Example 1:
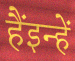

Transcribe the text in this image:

हैंइन्हें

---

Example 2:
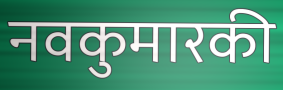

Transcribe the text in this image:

नवकुमारकी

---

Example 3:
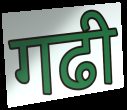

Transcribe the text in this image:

गढी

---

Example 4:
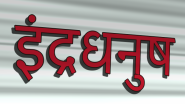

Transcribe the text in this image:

इंद्रधनुष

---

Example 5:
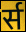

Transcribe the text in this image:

र्स